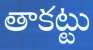
తాకట్టు